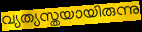
വ്യത്യസ്തയായിരുന്നു